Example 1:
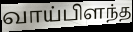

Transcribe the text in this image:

வாய்பிளந்த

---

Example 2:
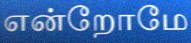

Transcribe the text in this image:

என்றோமே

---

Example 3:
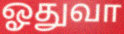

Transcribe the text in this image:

ஓதுவா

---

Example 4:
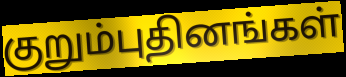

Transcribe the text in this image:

குறும்புதினங்கள்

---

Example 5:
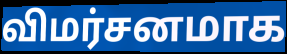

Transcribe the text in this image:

விமர்சனமாக